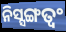
ନିସ୍ସଙ୍ଗତ୍ୱଂ